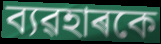
ব্যৱহাৰকে